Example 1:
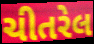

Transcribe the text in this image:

ચીતરેલ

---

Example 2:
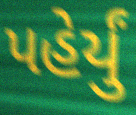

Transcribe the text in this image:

પહેર્યું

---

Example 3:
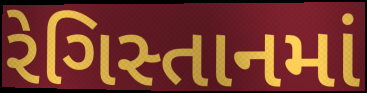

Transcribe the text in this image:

રેગિસ્તાનમાં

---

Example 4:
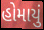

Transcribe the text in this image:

હોમાયું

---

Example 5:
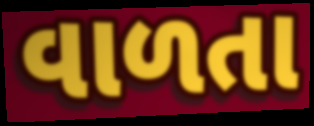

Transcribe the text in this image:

વાળતા